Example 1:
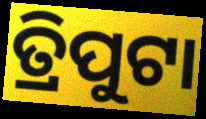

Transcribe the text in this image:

ତ୍ରିପୁଟା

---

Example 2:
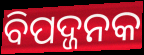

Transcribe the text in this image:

ବିପଦ୍ଜନକ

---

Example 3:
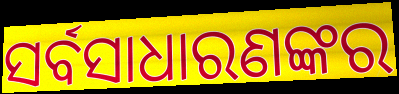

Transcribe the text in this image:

ସର୍ବସାଧାରଣଙ୍କର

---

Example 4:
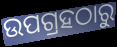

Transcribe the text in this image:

ଉପଗ୍ରହଠାରୁ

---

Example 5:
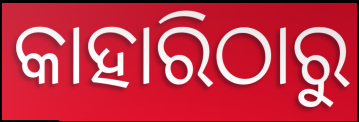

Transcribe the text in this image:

କାହାରିଠାରୁ